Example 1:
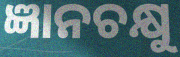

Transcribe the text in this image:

ଜ୍ଞାନଚକ୍ଷୁ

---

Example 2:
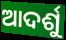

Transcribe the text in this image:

ଆଦର୍ଶୁ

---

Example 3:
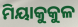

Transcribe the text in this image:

ମିୟାକୁକୁଳ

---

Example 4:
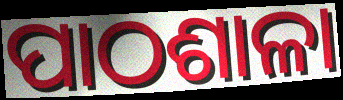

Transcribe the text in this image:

ପାଠଶାଳା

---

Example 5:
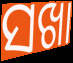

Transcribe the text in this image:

ସଖା